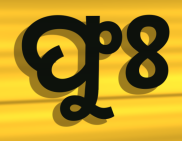
ଫୁଃ